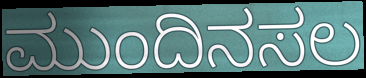
ಮುಂದಿನಸಲ